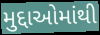
મુદ્દાઓમાંથી